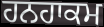
ਹਨਹਾਕਮ